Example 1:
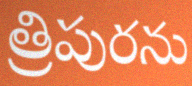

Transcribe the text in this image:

త్రిపురను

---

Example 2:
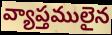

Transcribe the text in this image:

వ్యాప్తములైన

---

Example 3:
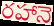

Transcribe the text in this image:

రహానె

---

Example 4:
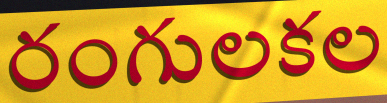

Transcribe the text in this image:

రంగులకల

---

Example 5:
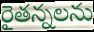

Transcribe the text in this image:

రైతన్నలను